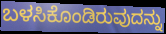
ಬಳಸಿಕೊಂಡಿರುವುದನ್ನು